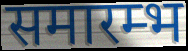
समारम्भ